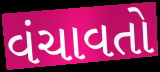
વંચાવતો